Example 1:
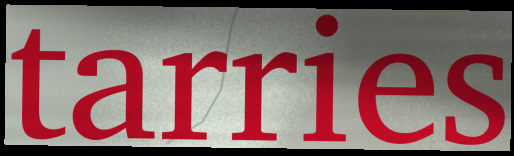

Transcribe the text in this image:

tarries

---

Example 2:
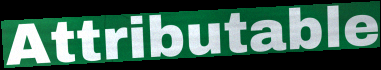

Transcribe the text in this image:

Attributable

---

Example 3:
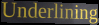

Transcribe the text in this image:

Underlining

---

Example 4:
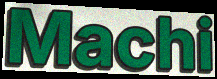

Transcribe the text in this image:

Machi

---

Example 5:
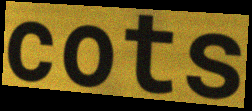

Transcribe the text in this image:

cots